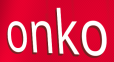
onko